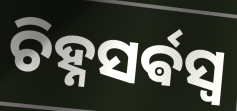
ଚିହ୍ନସର୍ଵସ୍ଵ